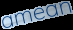
amean